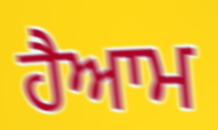
ਹੈਆਮ